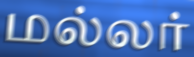
மல்லர்